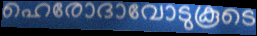
ഹെരോദാവോടുകൂടെ